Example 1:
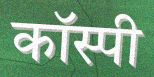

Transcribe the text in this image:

कॉस्पी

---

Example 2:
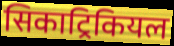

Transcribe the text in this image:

सिकाट्रिकियल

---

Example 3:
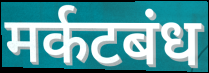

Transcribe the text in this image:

मर्कटबंध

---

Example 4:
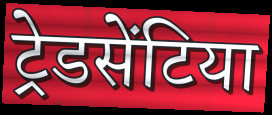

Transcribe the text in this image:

ट्रेडसेंटिया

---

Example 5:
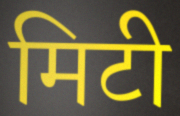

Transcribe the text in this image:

मिटी